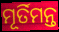
ମୂର୍ତିମନ୍ତ